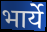
भार्ये